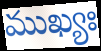
ముఖ్యః